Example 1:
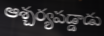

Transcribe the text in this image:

ఆశ్చర్యపడ్డాడు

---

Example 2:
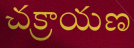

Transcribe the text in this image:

చక్రాయణ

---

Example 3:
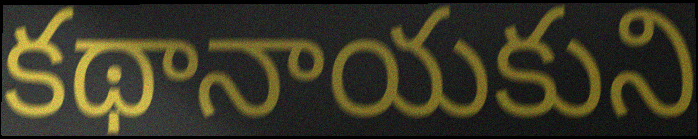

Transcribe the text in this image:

కథానాయకుని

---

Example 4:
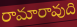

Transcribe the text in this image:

రామారావుది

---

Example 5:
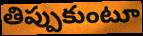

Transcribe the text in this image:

తిప్పుకుంటూ